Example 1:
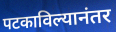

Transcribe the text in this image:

पटकाविल्यानंतर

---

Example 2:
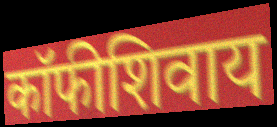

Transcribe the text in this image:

कॉफीशिवाय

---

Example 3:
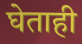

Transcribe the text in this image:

घेताही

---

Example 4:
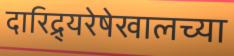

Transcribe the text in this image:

दारिद्र्यरेषेखालच्या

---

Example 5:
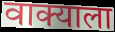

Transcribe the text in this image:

वाक्‍याला